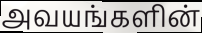
அவயங்களின்